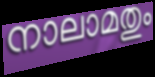
നാലാമതും